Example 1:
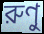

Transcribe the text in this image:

ৰুণু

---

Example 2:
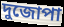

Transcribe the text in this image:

দুজোপা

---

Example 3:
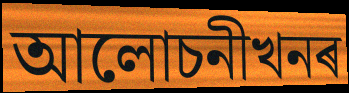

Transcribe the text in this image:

আলোচনীখনৰ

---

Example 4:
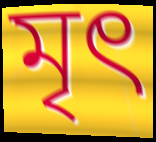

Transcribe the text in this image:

মৃৎ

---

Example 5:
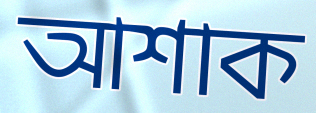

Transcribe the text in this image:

আশাক